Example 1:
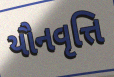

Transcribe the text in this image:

યૌનવૃત્તિ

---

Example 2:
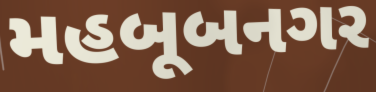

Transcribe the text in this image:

મહબૂબનગર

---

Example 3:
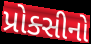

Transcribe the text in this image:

પ્રોક્સીનો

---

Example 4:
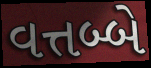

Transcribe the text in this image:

વત્તબ્બે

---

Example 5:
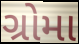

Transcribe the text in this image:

ગ્રોમા